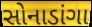
સોનાડાંગા